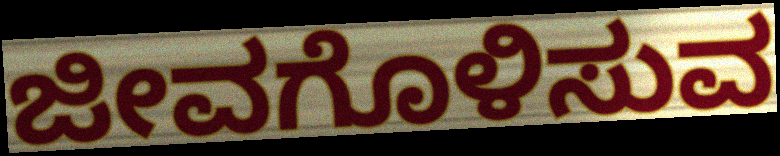
ಜೀವಗೊಳಿಸುವ